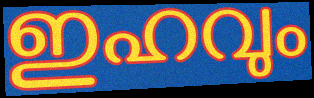
ഇഹവും